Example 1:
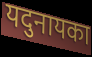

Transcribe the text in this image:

यदुनायका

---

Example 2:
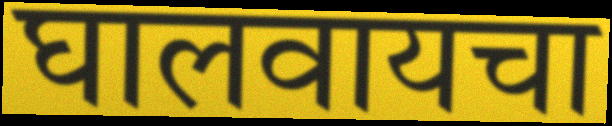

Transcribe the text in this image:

घालवायचा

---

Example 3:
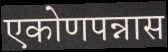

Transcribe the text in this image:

एकोणपन्नास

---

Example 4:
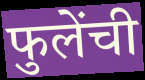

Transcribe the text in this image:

फुलेंची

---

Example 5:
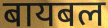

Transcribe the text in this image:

बायबल